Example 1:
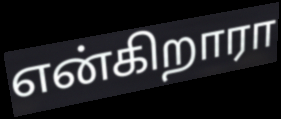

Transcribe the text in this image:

என்கிறாரா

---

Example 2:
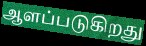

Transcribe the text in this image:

ஆளப்படுகிறது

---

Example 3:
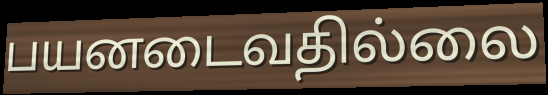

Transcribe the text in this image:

பயனடைவதில்லை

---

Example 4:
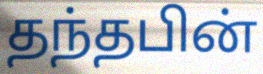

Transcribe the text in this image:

தந்தபின்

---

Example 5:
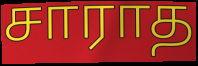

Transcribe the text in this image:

சாராத